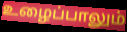
உழைப்பாலும்